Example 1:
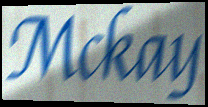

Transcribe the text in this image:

Mckay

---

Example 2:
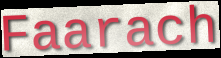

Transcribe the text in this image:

Faarach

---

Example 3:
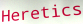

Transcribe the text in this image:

Heretics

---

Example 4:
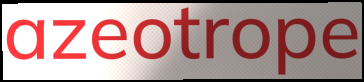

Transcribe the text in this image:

azeotrope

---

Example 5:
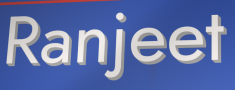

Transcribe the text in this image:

Ranjeet